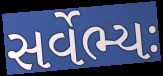
સર્વેભ્યઃ